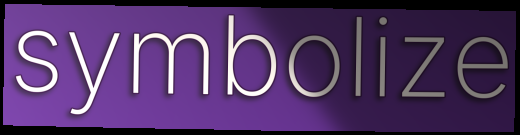
symbolize